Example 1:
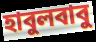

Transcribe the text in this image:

হাবুলবাবু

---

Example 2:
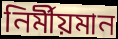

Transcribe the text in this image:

নির্মীয়মান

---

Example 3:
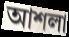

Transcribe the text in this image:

আশলা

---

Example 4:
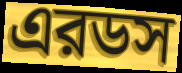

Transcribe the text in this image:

এরডস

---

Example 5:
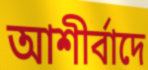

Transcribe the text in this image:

আশীর্বাদে